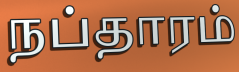
நப்தாரம்